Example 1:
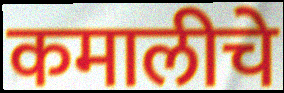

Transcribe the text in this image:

कमालीचे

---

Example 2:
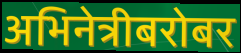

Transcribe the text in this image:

अभिनेत्रीबरोबर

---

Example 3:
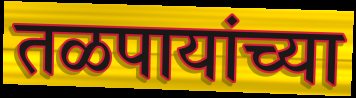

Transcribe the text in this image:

तळपायांच्या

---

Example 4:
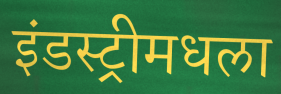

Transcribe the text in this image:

इंडस्ट्रीमधला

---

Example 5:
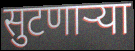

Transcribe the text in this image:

सुटणाऱ्या